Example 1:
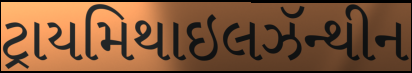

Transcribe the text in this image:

ટ્રાયમિથાઇલઝૅન્થીન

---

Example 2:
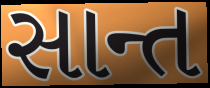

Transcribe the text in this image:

સાન્ત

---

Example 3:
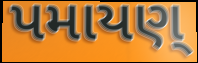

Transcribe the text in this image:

પમાયણ્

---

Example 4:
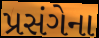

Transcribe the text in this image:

પ્રસંગેના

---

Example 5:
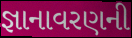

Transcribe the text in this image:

જ્ઞાનાવરણની